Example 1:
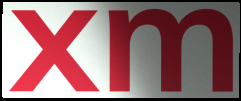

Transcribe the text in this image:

xm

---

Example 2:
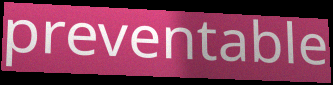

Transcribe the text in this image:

preventable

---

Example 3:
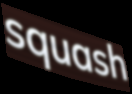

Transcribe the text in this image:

squash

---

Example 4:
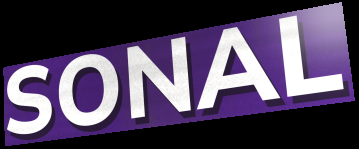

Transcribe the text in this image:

SONAL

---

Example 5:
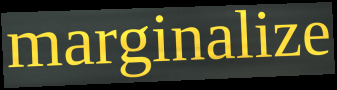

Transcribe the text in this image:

marginalize